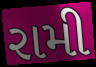
રામી